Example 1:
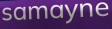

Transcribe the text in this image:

samayne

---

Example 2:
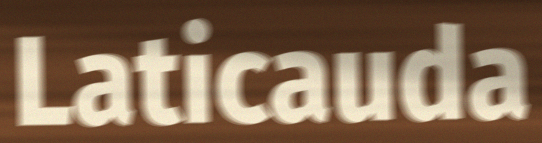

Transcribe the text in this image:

Laticauda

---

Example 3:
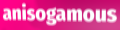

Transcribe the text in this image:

anisogamous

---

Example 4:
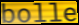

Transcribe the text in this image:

bolle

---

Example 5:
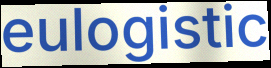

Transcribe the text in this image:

eulogistic